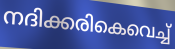
നദിക്കരികെവെച്ച്